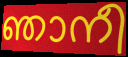
ഞാനീ